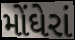
મોંઘેરાં